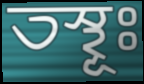
তস্থূঃ